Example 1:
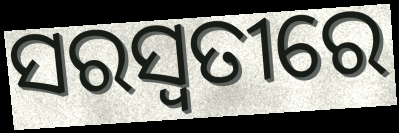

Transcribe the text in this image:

ସରସ୍ୱତୀରେ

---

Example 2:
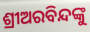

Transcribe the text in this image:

ଶ୍ରୀଅରବିନ୍ଦଙ୍କୁ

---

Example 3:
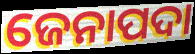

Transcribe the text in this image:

ଜେନାପଦା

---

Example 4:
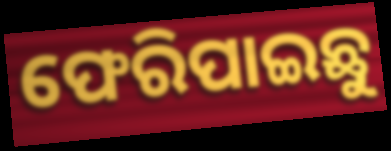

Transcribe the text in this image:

ଫେରିପାଇଛୁ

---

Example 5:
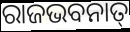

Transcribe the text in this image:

ରାଜଭବନାତ୍